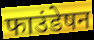
फाउंडेषन